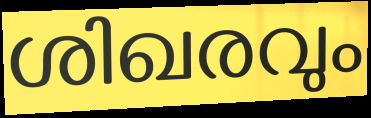
ശിഖരവും